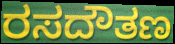
ರಸದೌತಣ